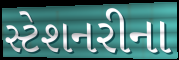
સ્ટેશનરીના